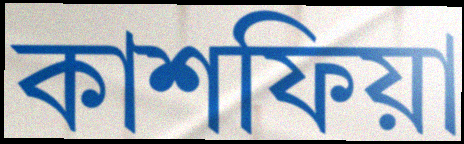
কাশফিয়া